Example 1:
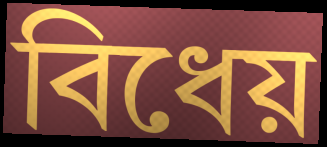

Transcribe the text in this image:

বিধেয়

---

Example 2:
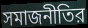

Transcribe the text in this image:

সমাজনীতির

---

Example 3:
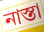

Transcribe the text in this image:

নাস্তা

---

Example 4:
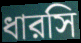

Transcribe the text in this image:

ধারসি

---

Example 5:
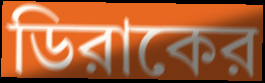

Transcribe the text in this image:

ডিরাকের